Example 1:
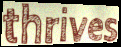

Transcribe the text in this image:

thrives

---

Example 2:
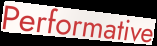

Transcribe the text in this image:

Performative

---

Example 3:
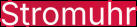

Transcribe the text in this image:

Stromuhr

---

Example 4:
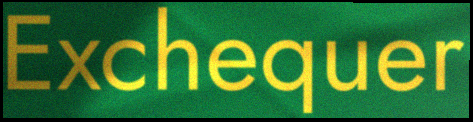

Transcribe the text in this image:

Exchequer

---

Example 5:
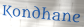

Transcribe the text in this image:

Kondhane